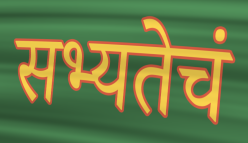
सभ्यतेचं